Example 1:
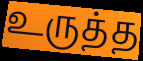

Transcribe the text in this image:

உருத்த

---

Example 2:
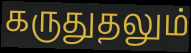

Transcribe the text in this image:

கருதுதலும்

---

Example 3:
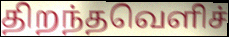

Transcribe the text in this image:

திறந்தவெளிச்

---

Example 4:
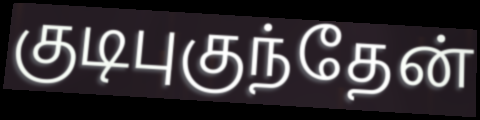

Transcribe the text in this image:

குடிபுகுந்தேன்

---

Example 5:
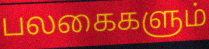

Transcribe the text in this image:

பலகைகளும்